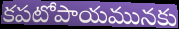
కపటోపాయమునకు